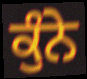
ਕੁੰਨੇ